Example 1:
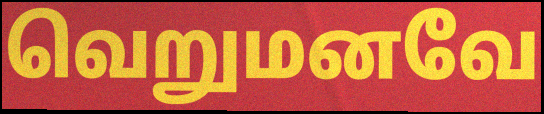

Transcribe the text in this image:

வெறுமனவே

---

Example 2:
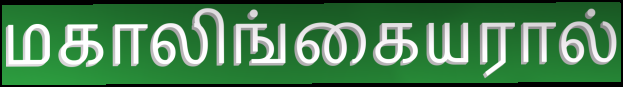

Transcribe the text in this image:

மகாலிங்கையரால்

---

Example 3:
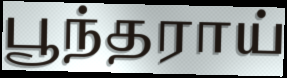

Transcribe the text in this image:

பூந்தராய்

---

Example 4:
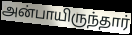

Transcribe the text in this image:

அன்பாயிருந்தார்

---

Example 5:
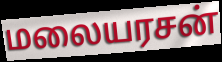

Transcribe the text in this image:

மலையரசன்